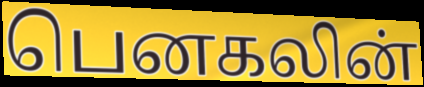
பெனகலின்